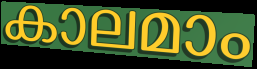
കാലമാം